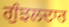
ਗੁੰਝਲਦਾਰ